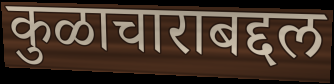
कुळाचाराबद्दल